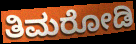
ತಿಮರೋಡಿ